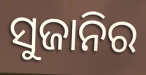
ସୁଜାନିର